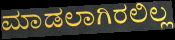
ಮಾಡಲಾಗಿರಲಿಲ್ಲ